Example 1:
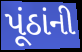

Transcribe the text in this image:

પૂંઠાંની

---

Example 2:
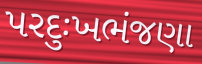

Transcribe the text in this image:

પરદુઃખભંજણા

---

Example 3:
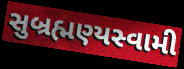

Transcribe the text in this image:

સુબ્રહ્મણ્યસ્વામી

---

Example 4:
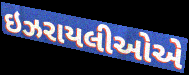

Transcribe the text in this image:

ઇઝરાયલીઓએ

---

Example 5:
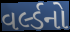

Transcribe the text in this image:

વર્લ્ડનો